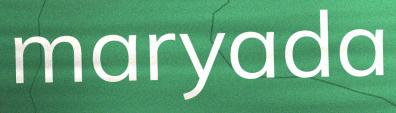
maryada